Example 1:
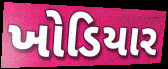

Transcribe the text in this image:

ખોડિયાર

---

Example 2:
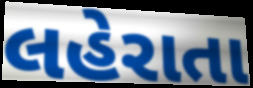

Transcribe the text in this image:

લહેરાતા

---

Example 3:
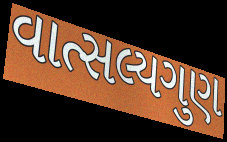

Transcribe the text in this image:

વાત્સલ્યગુણ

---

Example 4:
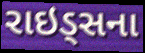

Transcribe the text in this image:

રાઇડ્સના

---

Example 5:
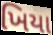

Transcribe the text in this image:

ખિયા